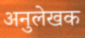
अनुलेखक